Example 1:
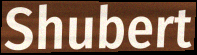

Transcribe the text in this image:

Shubert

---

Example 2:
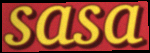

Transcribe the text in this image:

sasa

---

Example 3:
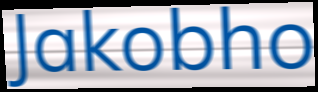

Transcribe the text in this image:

Jakobho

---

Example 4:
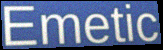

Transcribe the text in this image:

Emetic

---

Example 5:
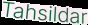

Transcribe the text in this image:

Tahsildar